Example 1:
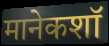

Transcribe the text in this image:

मानेकशॉ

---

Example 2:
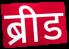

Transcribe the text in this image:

ब्रीड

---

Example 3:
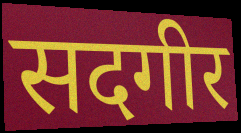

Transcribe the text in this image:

सदगीर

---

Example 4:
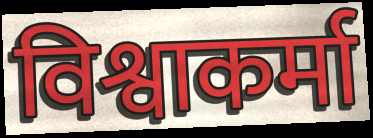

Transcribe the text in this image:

विश्वाकर्मा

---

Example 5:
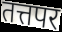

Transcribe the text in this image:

तत्तपर